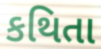
કથિતા